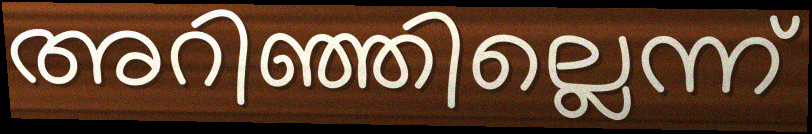
അറിഞ്ഞില്ലെന്ന്